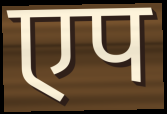
एप